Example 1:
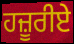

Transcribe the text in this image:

ਹਜ਼ੂਰੀਏ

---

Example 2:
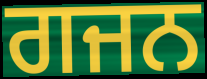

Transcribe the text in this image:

ਗਜਨ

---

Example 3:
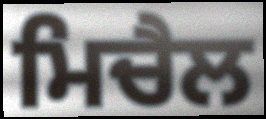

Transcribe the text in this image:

ਮਿਚੈਲ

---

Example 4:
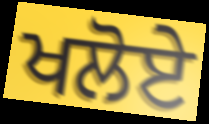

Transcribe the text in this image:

ਖਲੋਏ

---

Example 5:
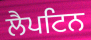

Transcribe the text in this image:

ਲੈਪਟਿਨ